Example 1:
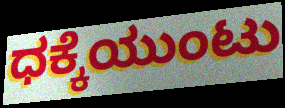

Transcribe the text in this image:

ಧಕ್ಕೆಯುಂಟು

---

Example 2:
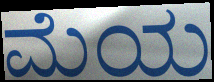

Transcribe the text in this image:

ಮೆಯ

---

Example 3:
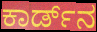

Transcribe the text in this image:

ಕಾರ್ಡ್‌ನ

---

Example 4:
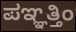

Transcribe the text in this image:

ಪಞ್ಞತ್ತಿಂ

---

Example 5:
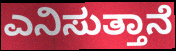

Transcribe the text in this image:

ಎನಿಸುತ್ತಾನೆ